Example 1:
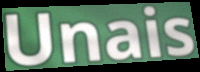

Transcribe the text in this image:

Unais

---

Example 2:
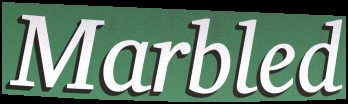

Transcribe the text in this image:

Marbled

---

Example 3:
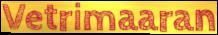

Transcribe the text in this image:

Vetrimaaran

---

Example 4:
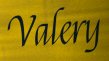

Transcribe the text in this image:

Valery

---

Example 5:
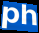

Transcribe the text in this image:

ph